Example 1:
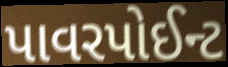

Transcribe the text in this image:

પાવરપોઈન્ટ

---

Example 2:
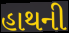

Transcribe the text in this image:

હાથની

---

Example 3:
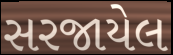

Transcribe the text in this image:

સરજાયેલ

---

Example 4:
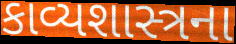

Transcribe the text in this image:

કાવ્યશાસ્ત્રના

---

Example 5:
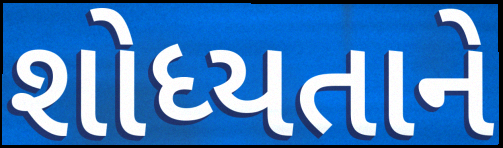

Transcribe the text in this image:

શોધ્યતાને